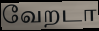
வேறடா